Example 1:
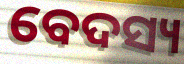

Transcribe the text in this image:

ବେଦସ୍ୟ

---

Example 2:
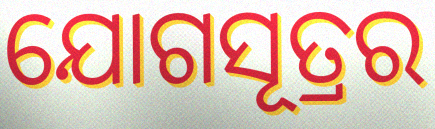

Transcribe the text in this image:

ଯୋଗସୂତ୍ରର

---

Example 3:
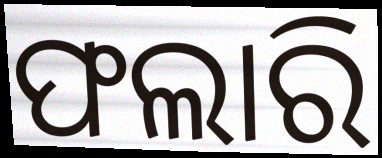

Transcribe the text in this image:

ଫଲାରି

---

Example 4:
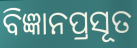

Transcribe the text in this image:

ବିଜ୍ଞାନପ୍ରସୂତ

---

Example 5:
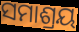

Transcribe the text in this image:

ସମାଶ୍ରୟ